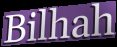
Bilhah